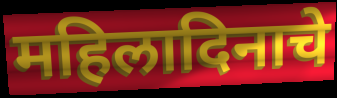
महिलादिनाचे